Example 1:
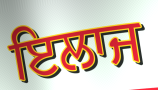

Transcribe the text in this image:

ਇਲਾਜ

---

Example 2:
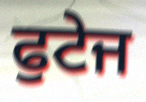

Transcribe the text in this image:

ਫੁਟੇਜ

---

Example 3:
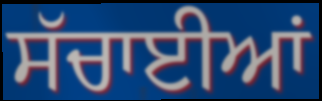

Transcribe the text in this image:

ਸੱਚਾਈਆਂ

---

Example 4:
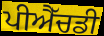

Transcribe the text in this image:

ਪੀਐੱਚਡੀ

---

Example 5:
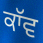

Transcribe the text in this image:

ਕਾੱਵ